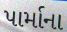
પાર્માના